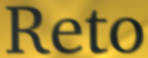
Reto